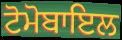
ਟੋਮੋਬਾਇਲ